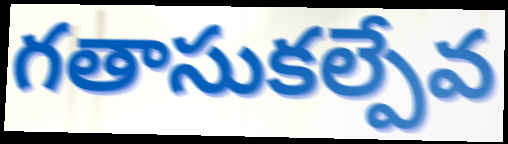
గతాసుకల్పేవ